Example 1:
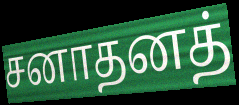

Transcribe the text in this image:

சனாதனத்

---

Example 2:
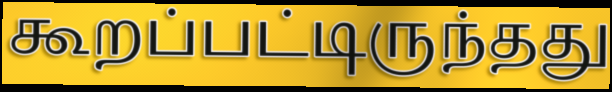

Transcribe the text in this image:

கூறப்பட்டிருந்தது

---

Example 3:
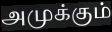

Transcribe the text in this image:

அமுக்கும்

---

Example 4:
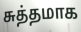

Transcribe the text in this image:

சுத்தமாக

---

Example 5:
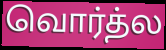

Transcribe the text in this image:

வொர்த்ல